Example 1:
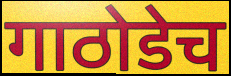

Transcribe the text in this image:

गाठोडेच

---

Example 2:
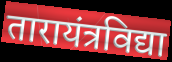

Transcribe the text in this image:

तारायंत्रविद्या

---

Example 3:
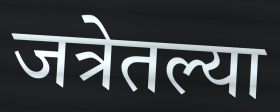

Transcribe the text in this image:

जत्रेतल्या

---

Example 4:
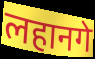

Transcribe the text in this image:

लहानगे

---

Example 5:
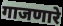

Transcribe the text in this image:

गाजणारे